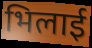
भिलाई